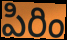
పిరిం